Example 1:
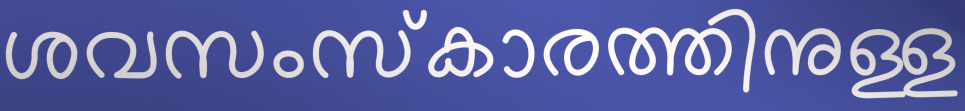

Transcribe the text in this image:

ശവസംസ്കാരത്തിനുള്ള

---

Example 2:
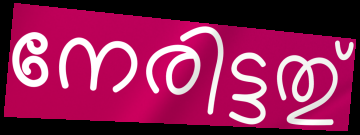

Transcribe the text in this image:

നേരിട്ടതു്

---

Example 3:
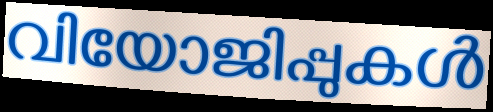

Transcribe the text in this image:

വിയോജിപ്പുകൾ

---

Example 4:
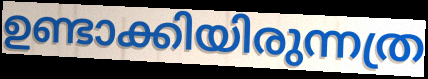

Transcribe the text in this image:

ഉണ്ടാക്കിയിരുന്നത്ര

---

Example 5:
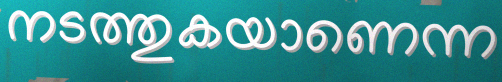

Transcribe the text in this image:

നടത്തുകയാണെന്ന